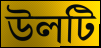
উলটি